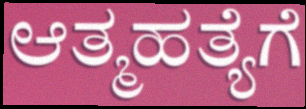
ಆತ್ಮಹತ್ಯೆಗೆ